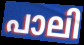
പാലി